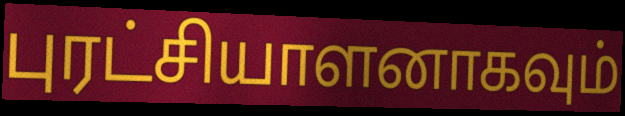
புரட்சியாளனாகவும்